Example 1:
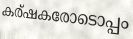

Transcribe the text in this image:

കര്ഷകരോടൊപ്പം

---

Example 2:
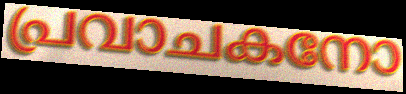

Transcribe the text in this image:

പ്രവാചകനോ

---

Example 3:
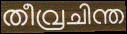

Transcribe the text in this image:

തീവ്രചിന്ത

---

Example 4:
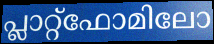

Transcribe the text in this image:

പ്ലാറ്റ്ഫോമിലോ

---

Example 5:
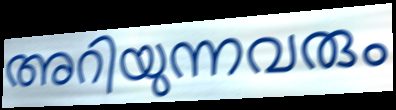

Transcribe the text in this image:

അറിയുന്നവരും